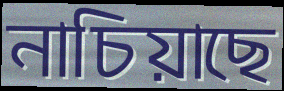
নাচিয়াছে